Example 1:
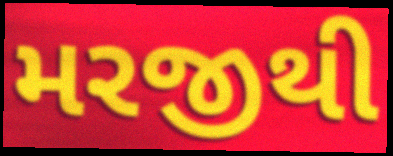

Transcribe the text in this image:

મરજીથી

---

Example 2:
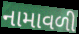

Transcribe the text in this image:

નામાવળી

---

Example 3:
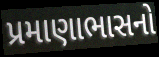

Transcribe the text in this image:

પ્રમાણાભાસનો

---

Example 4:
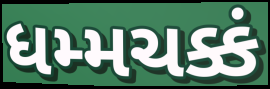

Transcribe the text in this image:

ધમ્મચક્કં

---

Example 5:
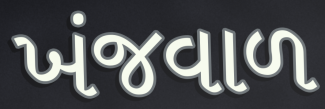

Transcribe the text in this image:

ખંજવાળ